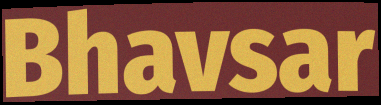
Bhavsar